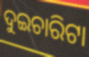
ଦୁଇଚାରିଟା